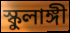
স্কুলাঙ্গী